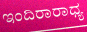
ಇಂದಿರಾರಾಧ್ಯ